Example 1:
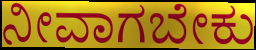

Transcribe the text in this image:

ನೀವಾಗಬೇಕು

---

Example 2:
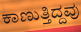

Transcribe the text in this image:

ಕಾಣುತ್ತಿದ್ದವು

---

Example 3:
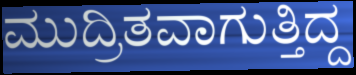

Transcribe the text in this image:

ಮುದ್ರಿತವಾಗುತ್ತಿದ್ದ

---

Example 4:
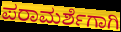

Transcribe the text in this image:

ಪರಾಮರ್ಶೆಗಾಗಿ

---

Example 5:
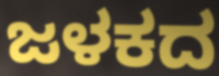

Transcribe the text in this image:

ಜಳಕದ